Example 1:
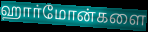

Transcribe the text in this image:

ஹார்மோன்களை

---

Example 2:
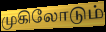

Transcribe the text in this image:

முகிலோடும்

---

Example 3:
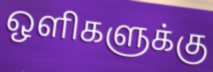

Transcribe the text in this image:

ஒளிகளுக்கு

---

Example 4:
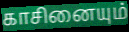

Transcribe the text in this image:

காசினையும்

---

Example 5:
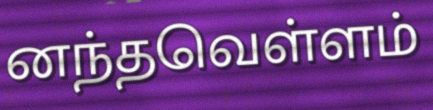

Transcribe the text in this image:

னந்தவெள்ளம்